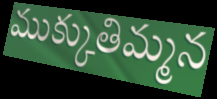
ముక్కుతిమ్మన